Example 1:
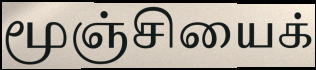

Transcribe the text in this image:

மூஞ்சியைக்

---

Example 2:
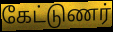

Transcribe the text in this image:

கேட்டுணர்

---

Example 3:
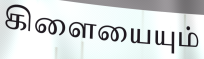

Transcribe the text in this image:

கிளையையும்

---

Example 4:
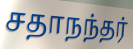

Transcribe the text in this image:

சதாநந்தர்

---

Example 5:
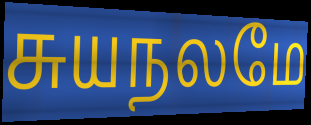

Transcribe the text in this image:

சுயநலமே